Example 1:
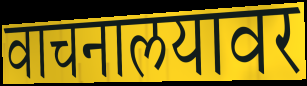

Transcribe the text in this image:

वाचनालयावर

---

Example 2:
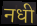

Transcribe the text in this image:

नधी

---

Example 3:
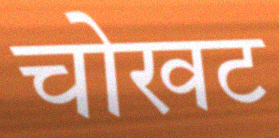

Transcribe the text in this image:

चोखट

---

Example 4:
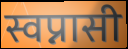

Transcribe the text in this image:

स्वप्नासी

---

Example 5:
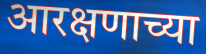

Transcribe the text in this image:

आरक्षणाच्या